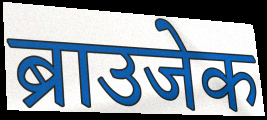
ब्राउजेक